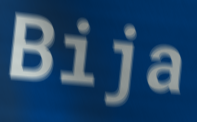
Bija